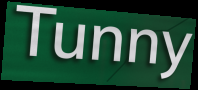
Tunny